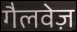
गैलवेज़